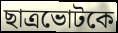
ছাত্রভোটকে